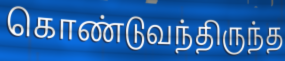
கொண்டுவந்திருந்த